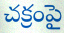
చక్రంపై